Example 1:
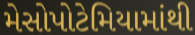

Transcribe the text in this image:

મેસોપોટેમિયામાંથી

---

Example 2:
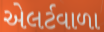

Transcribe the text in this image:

એલર્ટવાળા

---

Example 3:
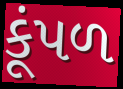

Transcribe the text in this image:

કૂંપળ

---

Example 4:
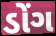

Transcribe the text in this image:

ડોંગ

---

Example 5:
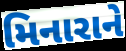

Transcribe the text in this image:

મિનારાને